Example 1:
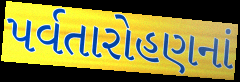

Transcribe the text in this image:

પર્વતારોહણનાં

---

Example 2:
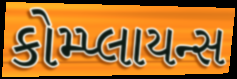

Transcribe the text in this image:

કોમ્પ્લાયન્સ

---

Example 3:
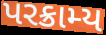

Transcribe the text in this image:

પરક્રામ્ય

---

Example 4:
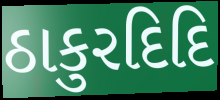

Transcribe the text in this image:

ઠાકુરદિદિ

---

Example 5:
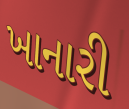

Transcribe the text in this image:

ખાનારી